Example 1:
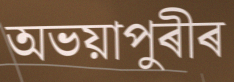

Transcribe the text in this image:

অভয়াপুৰীৰ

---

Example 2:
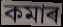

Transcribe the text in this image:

কমাৰ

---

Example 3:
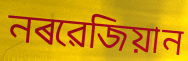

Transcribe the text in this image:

নৰৱেজিয়ান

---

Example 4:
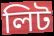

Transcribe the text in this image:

লিট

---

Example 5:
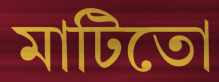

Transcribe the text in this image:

মাটিতো